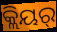
କ୍ଲିୟର୍